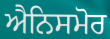
ਐਨਿਸਮੋਰ